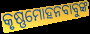
କୃଷ୍ଣମୋହନବାବୁଙ୍କ